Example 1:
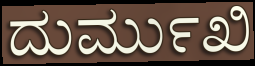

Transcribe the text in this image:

ದುರ್ಮುಖಿ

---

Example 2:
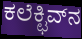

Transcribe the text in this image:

ಕಲೆಕ್ಟಿವ್‌ನ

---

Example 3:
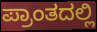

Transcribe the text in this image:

ಪ್ರಾಂತದಲ್ಲಿ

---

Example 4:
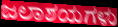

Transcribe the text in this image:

ಜಲಾಶಯಗಳು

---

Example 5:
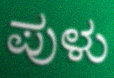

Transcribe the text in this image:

ಪುಳು